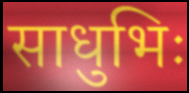
साधुभिः